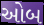
ઓબ